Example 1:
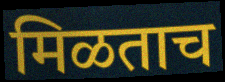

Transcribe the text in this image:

मिळताच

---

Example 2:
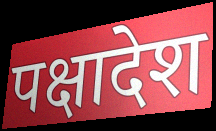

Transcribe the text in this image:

पक्षादेश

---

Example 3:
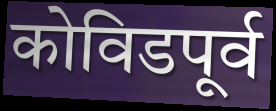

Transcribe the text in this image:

कोविडपूर्व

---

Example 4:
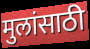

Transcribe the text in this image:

मुलांसाठी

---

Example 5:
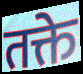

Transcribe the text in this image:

तक्ते